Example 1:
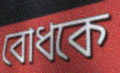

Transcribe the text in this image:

বোধকে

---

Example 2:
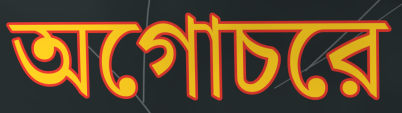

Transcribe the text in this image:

অগোচরে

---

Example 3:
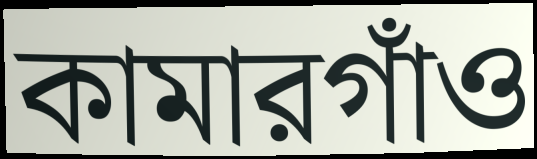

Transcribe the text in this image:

কামারগাঁও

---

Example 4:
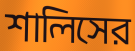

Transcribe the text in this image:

শালিসের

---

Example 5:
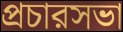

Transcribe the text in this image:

প্রচারসভা